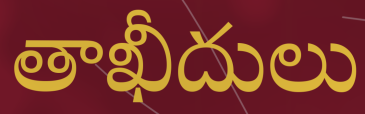
తాఖీదులు